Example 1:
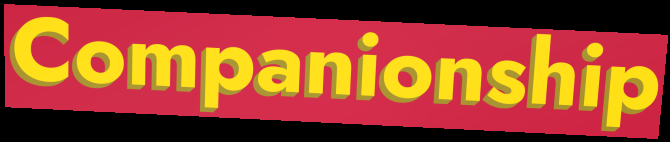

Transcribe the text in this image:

Companionship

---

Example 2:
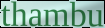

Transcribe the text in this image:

thambu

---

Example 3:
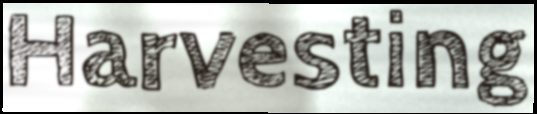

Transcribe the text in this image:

Harvesting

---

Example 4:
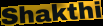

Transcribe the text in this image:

Shakthi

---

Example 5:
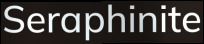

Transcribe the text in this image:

Seraphinite